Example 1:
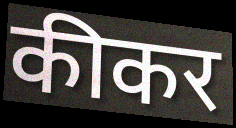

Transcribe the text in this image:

कीकर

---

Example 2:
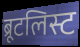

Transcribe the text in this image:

ब्रूटलिस्ट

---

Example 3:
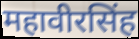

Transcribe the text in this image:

महावीरसिंह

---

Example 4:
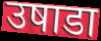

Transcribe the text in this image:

उषाडा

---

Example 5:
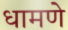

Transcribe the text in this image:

धामणे